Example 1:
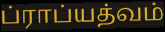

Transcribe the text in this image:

ப்ராப்யத்வம்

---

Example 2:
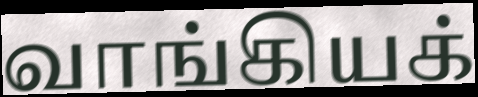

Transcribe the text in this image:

வாங்கியக்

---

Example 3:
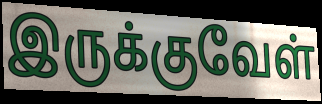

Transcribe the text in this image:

இருக்குவேள்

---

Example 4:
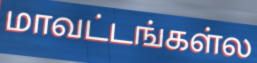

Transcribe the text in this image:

மாவட்டங்கள்ல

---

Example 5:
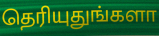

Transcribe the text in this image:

தெரியுதுங்களா